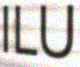
ILU